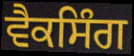
ਵੈਕਸਿੰਗ